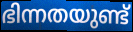
ഭിന്നതയുണ്ട്